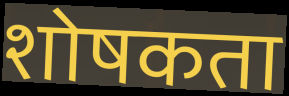
शोषकता